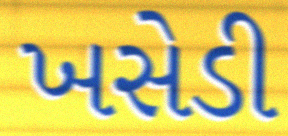
ખસેડી